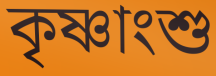
কৃষ্ণাংশু